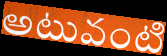
అటువంటి